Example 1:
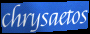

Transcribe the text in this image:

chrysaetos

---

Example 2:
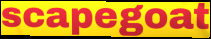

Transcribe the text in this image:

scapegoat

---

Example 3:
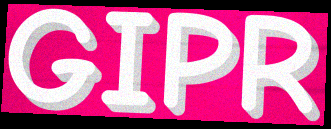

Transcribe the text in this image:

GIPR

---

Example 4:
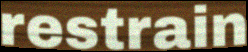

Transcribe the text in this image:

restrain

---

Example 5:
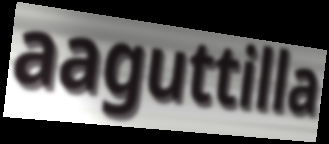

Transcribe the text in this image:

aaguttilla